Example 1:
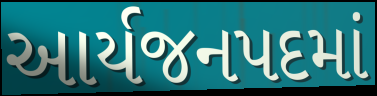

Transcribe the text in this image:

આર્યજનપદમાં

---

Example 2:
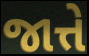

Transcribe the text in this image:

જાત્તે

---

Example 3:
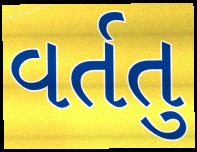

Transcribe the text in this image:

વર્તતુ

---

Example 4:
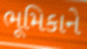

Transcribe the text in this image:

ભૂમિકાને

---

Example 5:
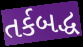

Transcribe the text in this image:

તર્કબદ્ધ